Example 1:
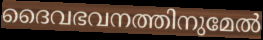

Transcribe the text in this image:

ദൈവഭവനത്തിനുമേൽ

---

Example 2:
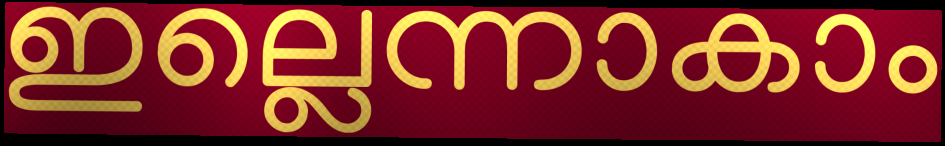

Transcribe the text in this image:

ഇല്ലെന്നാകാം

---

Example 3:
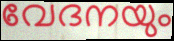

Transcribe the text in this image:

വേദനയും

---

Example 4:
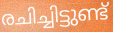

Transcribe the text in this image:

രചിച്ചിട്ടുണ്ട്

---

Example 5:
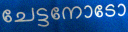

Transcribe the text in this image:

ചേട്ടനോടോ